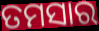
ତମସାର